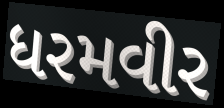
ધરમવીર